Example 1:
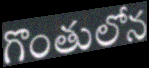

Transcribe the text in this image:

గొంతులోన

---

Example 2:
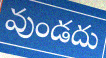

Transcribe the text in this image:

వుండదు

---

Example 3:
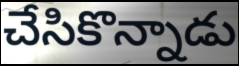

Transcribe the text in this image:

చేసికొన్నాడు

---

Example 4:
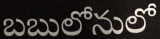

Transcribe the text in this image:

బబులోనులో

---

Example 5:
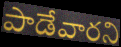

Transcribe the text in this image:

పాడేవారని